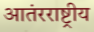
आतंरराष्ट्रीय